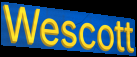
Wescott